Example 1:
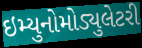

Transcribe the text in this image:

ઇમ્યુનોમોડ્યુલેટરી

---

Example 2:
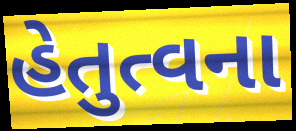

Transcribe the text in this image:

હેતુત્વના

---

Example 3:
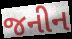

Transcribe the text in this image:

જનીન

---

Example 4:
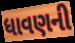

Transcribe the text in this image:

ધાવણની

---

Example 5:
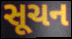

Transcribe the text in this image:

સૂચન